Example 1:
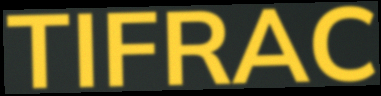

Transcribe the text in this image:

TIFRAC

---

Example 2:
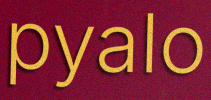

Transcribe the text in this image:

pyalo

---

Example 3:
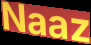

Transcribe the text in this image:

Naaz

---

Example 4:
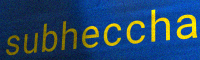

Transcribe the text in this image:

subheccha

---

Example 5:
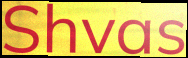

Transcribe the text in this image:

Shvas